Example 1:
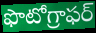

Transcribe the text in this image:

ఫొటోగ్రాఫర్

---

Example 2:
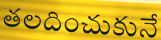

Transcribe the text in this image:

తలదించుకునే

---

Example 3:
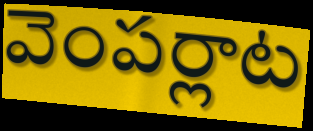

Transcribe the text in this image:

వెంపర్లాట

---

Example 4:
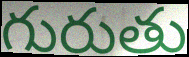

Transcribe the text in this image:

గురుతు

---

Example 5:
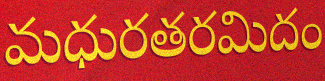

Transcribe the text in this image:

మధురతరమిదం